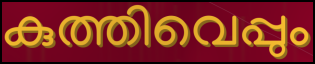
കുത്തിവെപ്പും